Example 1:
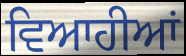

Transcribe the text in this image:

ਵਿਆਹੀਆਂ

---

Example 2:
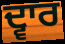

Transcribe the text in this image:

ਦ੍ਵਾਰ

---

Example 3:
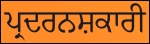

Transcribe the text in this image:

ਪ੍ਰਦਰਨਸ਼ਕਾਰੀ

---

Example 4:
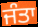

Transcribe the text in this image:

ਜੰਤਾ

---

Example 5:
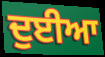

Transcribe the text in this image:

ਦੁਈਆ